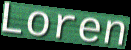
Loren